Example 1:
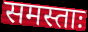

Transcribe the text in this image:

समस्ताः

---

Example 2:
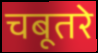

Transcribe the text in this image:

चबूतरे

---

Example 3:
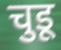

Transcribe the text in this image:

चुडू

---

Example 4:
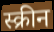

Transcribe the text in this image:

स्क्रीन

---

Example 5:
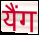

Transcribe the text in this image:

यैंग